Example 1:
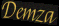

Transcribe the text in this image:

Demza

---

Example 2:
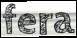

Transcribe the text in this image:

fera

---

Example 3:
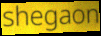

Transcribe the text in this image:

shegaon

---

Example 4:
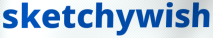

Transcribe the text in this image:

sketchywish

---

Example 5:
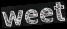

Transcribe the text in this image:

weet